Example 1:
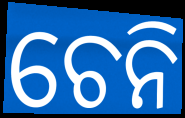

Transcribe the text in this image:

ଚେନି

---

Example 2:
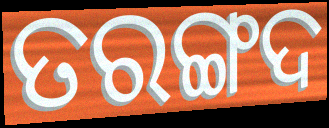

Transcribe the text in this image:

ତରଙ୍ଗଦ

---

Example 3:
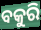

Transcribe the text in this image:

ବକୁରି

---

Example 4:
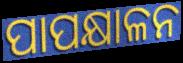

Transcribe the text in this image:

ପାପକ୍ଷାଳନ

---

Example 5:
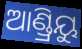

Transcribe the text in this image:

ଆଣ୍ଡ୍ରିୟୁ